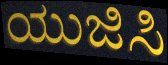
ಯುಜಿಸಿ